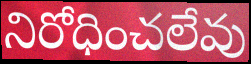
నిరోధించలేవు